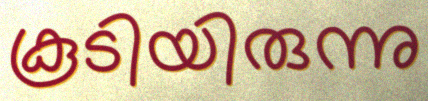
കൂടിയിരുന്നു